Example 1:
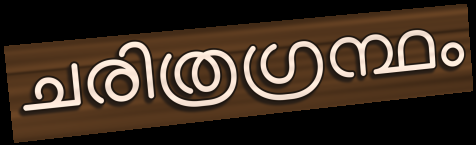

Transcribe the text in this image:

ചരിത്രഗ്രന്ഥം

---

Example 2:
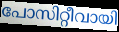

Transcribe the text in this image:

പോസിറ്റീവായി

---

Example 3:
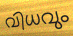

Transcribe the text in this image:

വിധവും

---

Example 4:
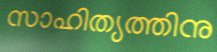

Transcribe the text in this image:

സാഹിത്യത്തിനു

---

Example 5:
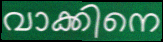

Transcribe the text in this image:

വാക്കിനെ